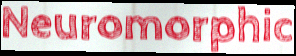
Neuromorphic